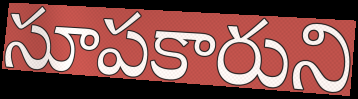
సూపకారుని